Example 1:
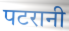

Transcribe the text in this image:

पटरानी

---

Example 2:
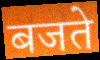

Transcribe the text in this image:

बजते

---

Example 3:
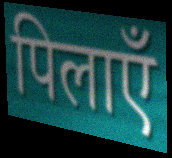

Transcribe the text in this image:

पिलाएँ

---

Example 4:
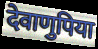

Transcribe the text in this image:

देवाणुपिया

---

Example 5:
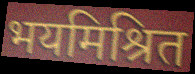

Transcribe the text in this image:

भयमिश्रित